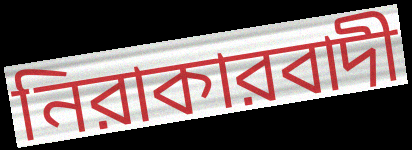
নিরাকারবাদী